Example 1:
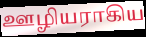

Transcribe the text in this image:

ஊழியராகிய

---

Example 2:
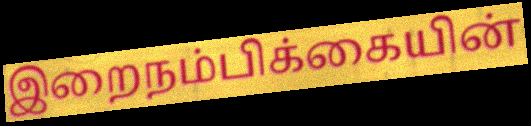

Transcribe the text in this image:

இறைநம்பிக்கையின்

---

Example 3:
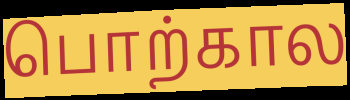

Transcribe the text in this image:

பொற்கால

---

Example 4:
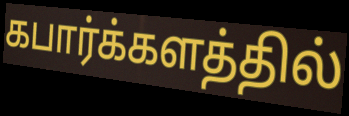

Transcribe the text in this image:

கபார்க்களத்தில்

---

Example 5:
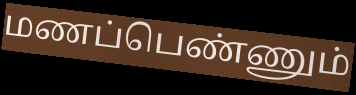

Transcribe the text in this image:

மணப்பெண்ணும்